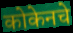
कोकेनचे